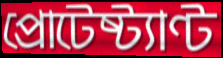
প্রোটেষ্ট্যাণ্ট